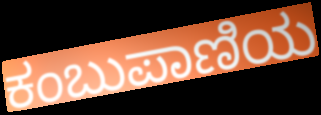
ಕಂಬುಪಾಣಿಯ